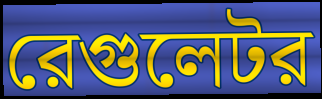
রেগুলেটর